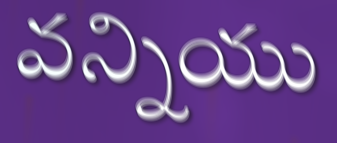
వన్నియు